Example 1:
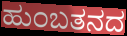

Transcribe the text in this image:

ಹುಂಬತನದ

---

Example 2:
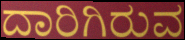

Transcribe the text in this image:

ದಾರಿಗಿರುವ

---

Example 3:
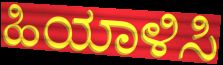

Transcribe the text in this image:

ಹಿಯಾಳಿಸಿ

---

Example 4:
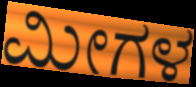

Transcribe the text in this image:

ಮೀಗಳ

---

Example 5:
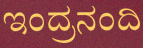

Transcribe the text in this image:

ಇಂದ್ರನಂದಿ